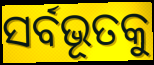
ସର୍ବଭୂତକୁ